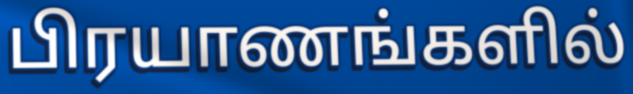
பிரயாணங்களில்